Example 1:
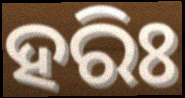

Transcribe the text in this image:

ହରିଃ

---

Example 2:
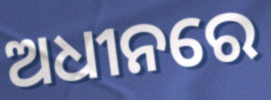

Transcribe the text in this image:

ଅଧୀନରେ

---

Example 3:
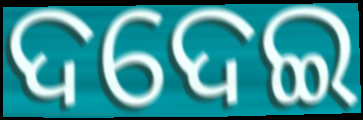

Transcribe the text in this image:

ଦଦେଇ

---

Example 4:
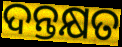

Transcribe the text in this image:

ଦନ୍ତକ୍ଷତ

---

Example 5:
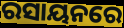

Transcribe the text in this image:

ରସାୟନରେ